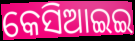
କେସିଆଇଇ